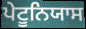
ਪੇਟੂਨਿਯਾਸ